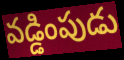
వడ్డింపుడు